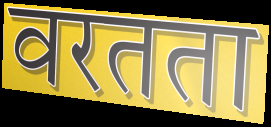
वरतता